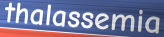
thalassemia